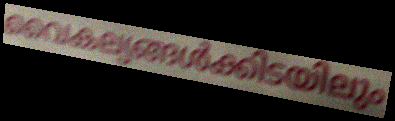
വൈകല്യങ്ങൾക്കിടയിലും